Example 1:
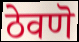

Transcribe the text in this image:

ठेवणॆ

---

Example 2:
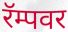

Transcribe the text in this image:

रॅम्पवर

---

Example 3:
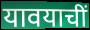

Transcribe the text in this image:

यावयाचीं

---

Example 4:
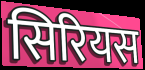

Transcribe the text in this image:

सिरियस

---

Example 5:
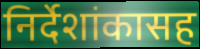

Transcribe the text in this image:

निर्देशांकासह